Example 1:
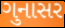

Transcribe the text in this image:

ગુનાસર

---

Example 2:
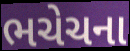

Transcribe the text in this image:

ભચેચના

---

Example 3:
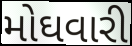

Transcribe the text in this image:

મોઘવારી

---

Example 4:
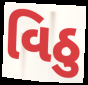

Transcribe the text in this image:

વિઠુ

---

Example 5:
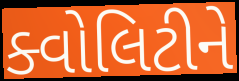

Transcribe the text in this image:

ક્વોલિટીને